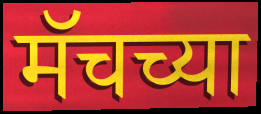
मॅचच्या